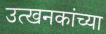
उत्खनकांच्या